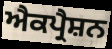
ਐਕਪ੍ਰੈਸ਼ਨ